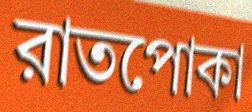
রাতপোকা